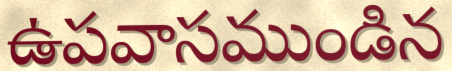
ఉపవాసముండిన